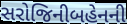
સરોજિનીબહેનની